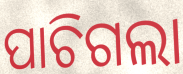
ପାଚିଗଲା